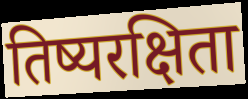
तिष्यरक्षिता